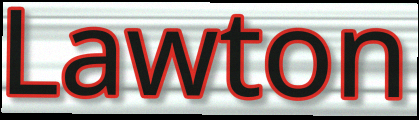
Lawton